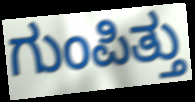
ಗುಂಪಿತ್ತು